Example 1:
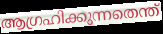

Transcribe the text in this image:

ആഗ്രഹിക്കുന്നതെന്ത്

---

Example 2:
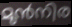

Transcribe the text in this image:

മുൻനിര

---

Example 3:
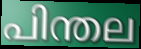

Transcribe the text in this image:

പിന്തല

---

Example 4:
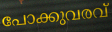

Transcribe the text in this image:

പോക്കുവരവ്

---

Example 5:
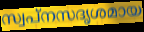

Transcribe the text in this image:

സ്വപ്നസദൃശമായ